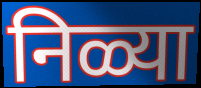
निळ्या